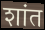
शांत